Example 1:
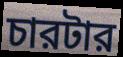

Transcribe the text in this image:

চারটার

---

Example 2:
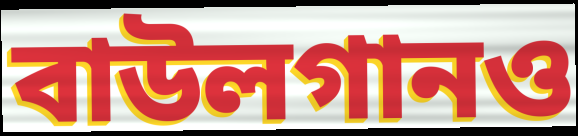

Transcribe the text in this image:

বাউলগানও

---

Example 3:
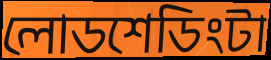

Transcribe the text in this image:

লোডশেডিংটা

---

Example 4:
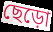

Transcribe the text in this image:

ছেড়ো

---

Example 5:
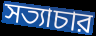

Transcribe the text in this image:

সত্যাচার